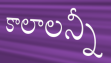
కాలాలన్నీ